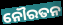
ନୌରତନ